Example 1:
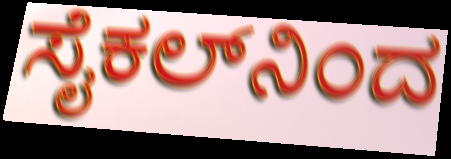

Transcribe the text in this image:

ಸೈಕಲ್‌ನಿಂದ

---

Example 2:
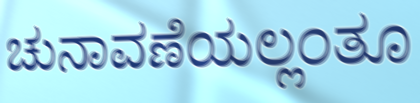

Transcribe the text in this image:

ಚುನಾವಣೆಯಲ್ಲಂತೂ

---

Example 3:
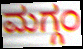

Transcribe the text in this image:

ಮಗ್ಗಂ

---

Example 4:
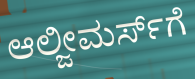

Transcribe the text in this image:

ಆಲ್ಜೀಮರ್ಸ್‌ಗೆ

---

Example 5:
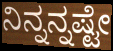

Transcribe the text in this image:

ನಿನ್ನನ್ನಷ್ಟೇ